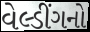
વેલ્ડીંગનો